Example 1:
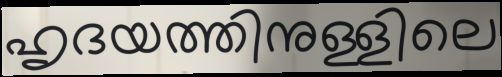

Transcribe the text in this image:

ഹൃദയത്തിനുള്ളിലെ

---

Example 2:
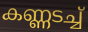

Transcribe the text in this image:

കണ്ണടച്ച്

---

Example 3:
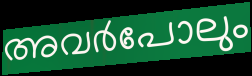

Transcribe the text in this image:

അവർപോലും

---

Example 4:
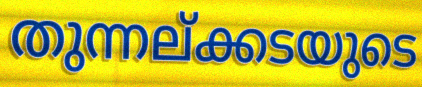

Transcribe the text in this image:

തുന്നല്ക്കടയുടെ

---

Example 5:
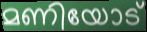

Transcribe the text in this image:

മണിയോട്